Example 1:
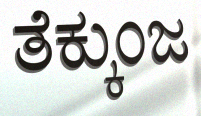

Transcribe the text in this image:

ತೆಕ್ಕುಂಜ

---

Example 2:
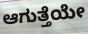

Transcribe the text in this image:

ಆಗುತ್ತೆಯೇ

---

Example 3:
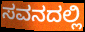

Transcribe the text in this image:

ಸವನದಲ್ಲಿ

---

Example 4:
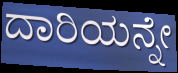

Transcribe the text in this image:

ದಾರಿಯನ್ನೇ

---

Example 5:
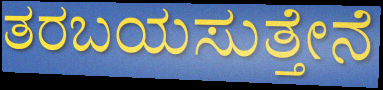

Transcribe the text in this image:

ತರಬಯಸುತ್ತೇನೆ